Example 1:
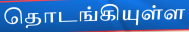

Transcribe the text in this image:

தொடங்கியுள்ள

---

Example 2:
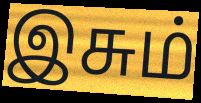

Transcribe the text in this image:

இசும்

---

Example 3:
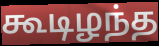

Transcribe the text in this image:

கூடிழந்த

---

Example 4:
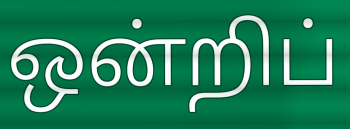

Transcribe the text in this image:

ஒன்றிப்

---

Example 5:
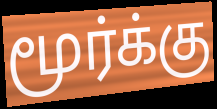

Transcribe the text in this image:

மூர்க்கு